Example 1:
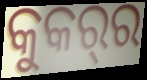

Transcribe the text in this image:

କୁକର୍‌ର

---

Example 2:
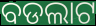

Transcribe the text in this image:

ବଡଲାଟ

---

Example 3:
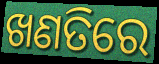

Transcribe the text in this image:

ଖଣତିରେ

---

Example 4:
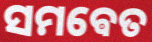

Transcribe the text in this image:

ସମଵେତ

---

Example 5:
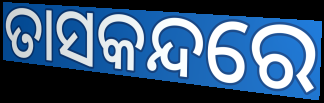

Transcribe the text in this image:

ତାସକନ୍ଦରେ